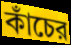
কাঁচের